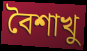
বৈশাখু